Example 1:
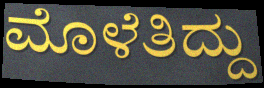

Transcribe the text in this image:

ಮೊಳೆತಿದ್ದು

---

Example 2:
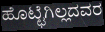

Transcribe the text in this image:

ಹೊಟ್ಟೆಗಿಲ್ಲದವರ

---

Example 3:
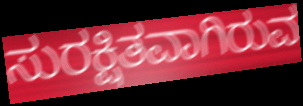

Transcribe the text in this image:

ಸುರಕ್ಷಿತವಾಗಿರುವ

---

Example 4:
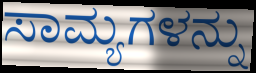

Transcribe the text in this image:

ಸಾಮ್ಯಗಳನ್ನು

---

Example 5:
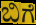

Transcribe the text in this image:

ಬಿಗೆ